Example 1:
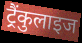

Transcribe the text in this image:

ट्रैंकुलाइज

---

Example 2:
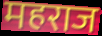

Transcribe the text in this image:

महराज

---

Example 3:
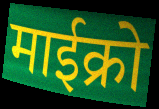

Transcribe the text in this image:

माईक्रो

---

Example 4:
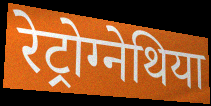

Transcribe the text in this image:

रेट्रोग्नेथिया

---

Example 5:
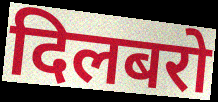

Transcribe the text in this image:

दिलबरो